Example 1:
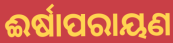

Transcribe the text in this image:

ଈର୍ଷାପରାୟଣ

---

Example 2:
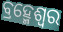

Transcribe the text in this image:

ବ୍ରହ୍ମେଶ୍ଵର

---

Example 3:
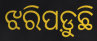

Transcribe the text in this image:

ଝରିପଡ଼ୁଛି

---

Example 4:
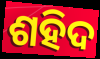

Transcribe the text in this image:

ଶହିଦ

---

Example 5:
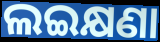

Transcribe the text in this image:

ଲଇକ୍ଷଣା